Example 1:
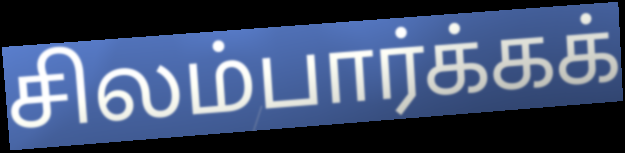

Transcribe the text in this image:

சிலம்பார்க்கக்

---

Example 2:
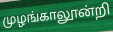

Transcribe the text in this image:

முழங்காலூன்றி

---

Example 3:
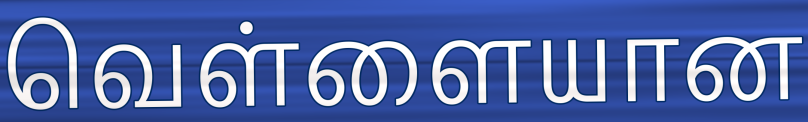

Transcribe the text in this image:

வெள்ளையான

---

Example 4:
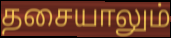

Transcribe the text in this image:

தசையாலும்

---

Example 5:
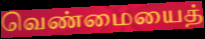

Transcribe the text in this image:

வெண்மையைத்